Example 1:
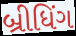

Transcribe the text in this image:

બ્રીધિંગ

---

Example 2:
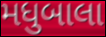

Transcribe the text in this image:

મધુબાલા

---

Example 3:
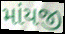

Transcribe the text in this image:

માંયજી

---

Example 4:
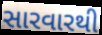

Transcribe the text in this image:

સારવારથી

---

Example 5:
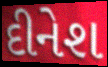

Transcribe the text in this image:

દીનેશ